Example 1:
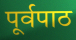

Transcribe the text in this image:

पूर्वपाठ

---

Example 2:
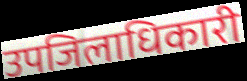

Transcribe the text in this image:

उपजिलाधिकारी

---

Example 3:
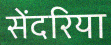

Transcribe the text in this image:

सेंदरिया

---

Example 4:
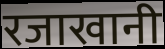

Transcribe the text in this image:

रजाखानी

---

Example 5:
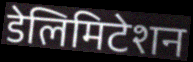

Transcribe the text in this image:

डेलिमिटेशन